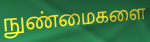
நுண்மைகளை